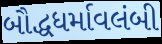
બૌદ્ધધર્માવલંબી